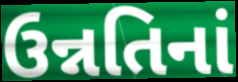
ઉન્નતિનાં